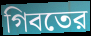
গিবতের